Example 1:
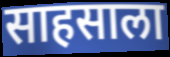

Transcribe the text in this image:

साहसाला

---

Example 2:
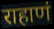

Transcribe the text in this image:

राहाणं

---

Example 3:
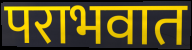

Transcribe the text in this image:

पराभवात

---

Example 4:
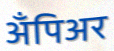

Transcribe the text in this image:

अँपिअर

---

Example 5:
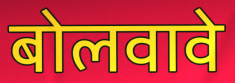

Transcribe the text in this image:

बोलवावे